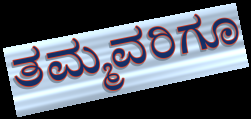
ತಮ್ಮವರಿಗೂ